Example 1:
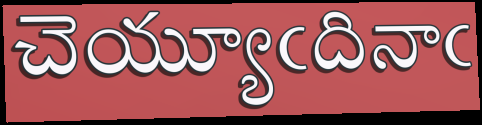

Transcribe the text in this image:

చెయ్యూఁదినాఁ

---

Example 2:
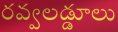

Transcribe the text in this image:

రవ్వలడ్డూలు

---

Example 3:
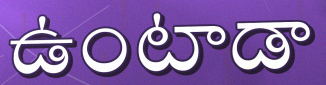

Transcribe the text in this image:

ఉంటాడా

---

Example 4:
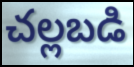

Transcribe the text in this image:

చల్లబడి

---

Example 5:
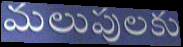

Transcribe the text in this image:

మలుపులకు